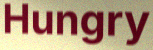
Hungry